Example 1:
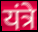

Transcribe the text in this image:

यंत्रे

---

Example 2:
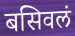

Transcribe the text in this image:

बसिवलं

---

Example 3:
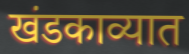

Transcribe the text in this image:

खंडकाव्यात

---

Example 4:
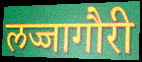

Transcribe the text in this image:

लज्जागौरी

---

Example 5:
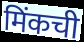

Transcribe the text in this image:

मिंकची